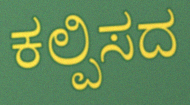
ಕಲ್ಪಿಸದ